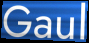
Gaul